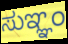
ಸುಞ್ಞಂ